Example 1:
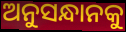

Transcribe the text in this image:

ଅନୁସନ୍ଧାନକୁ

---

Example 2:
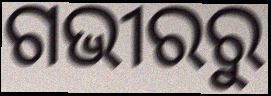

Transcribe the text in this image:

ଗଭୀରରୁ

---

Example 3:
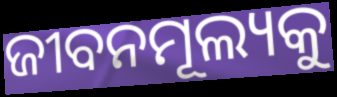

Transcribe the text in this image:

ଜୀବନମୂଲ୍ୟକୁ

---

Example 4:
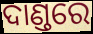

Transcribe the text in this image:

ଦାଣ୍ଡରେ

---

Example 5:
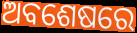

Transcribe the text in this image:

ଅବଶେଷରେ